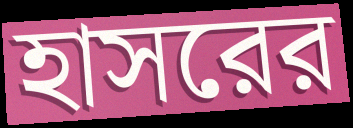
হাসরের